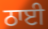
ਠਾਈ